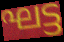
ഘട്ട